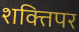
शक्तिपर